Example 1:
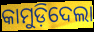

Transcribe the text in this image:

କାମୁଡ଼ିଦେଲା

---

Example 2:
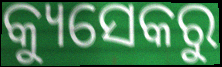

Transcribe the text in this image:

କ୍ୟୁସେକରୁ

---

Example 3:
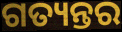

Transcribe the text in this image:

ଗତ୍ୟନ୍ତର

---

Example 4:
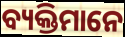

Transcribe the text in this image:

ବ୍ୟକ୍ତିମାନେ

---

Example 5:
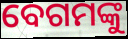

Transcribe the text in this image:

ବେଗମଙ୍କୁ